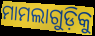
ମାମଲାଗୁଡ଼ିକୁ